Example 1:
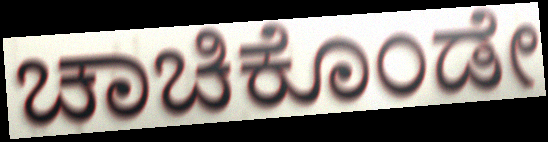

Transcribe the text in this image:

ಚಾಚಿಕೊಂಡೇ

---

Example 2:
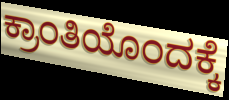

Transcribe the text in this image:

ಕ್ರಾಂತಿಯೊಂದಕ್ಕೆ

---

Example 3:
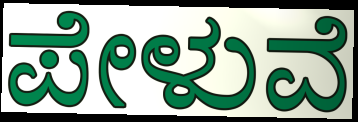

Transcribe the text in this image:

ಪೇಳುವೆ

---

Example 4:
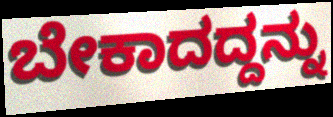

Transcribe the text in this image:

ಬೇಕಾದದ್ದನ್ನು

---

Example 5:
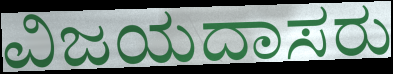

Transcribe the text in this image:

ವಿಜಯದಾಸರು